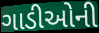
ગાડીઓની